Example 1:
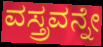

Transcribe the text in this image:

ವಸ್ತ್ರವನ್ನೇ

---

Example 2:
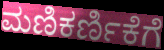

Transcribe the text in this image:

ಮಣಿಕರ್ಣಿಕೆಗೆ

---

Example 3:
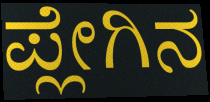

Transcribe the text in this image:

ಪ್ಲೇಗಿನ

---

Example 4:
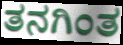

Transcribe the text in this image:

ತನಗಿಂತ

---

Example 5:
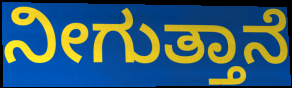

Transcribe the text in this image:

ನೀಗುತ್ತಾನೆ